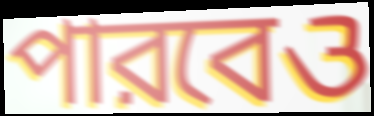
পারবেও